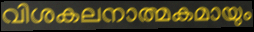
വിശകലനാത്മകമായും